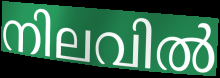
നിലവിൽ